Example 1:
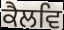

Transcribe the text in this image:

ਕੈਲਵਿ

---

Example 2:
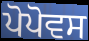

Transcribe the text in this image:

ਪੋਪੋਵਸ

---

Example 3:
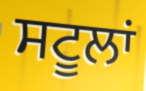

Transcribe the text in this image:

ਸਟੂਲਾਂ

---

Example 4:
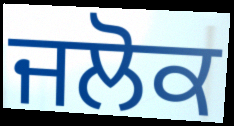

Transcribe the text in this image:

ਜਲੋਕ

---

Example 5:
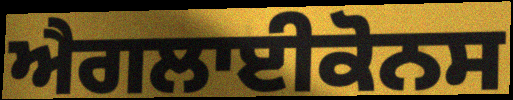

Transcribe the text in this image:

ਐਗਲਾਈਕੋਨਸ